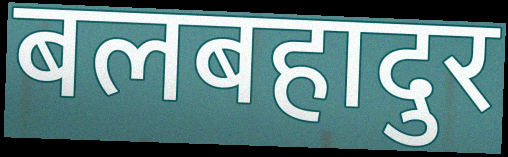
बलबहादुर